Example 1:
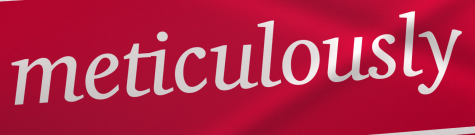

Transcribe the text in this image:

meticulously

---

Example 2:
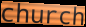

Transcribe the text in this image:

church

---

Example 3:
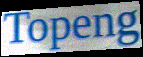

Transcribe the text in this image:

Topeng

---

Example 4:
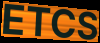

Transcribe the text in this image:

ETCS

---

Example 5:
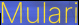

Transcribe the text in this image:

Mulari